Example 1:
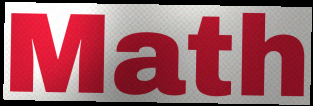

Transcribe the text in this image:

Math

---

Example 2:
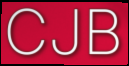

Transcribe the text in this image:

CJB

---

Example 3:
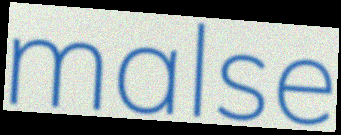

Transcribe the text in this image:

malse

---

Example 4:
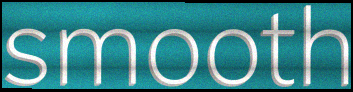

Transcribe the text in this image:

smooth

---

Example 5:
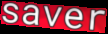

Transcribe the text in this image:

saver